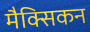
मैक्सिकन